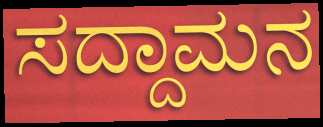
ಸದ್ದಾಮನ